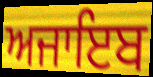
ਅਜਾਇਬ